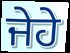
ਜੇਹੇ